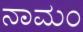
ನಾಮಂ